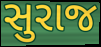
સુરાજ